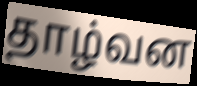
தாழ்வன